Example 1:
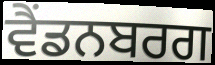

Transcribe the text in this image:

ਵੈਂਡਨਬਰਗ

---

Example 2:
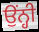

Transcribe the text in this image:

ਉਂਨ੍ਹੀ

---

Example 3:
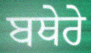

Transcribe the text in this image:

ਬਥੇਰੇ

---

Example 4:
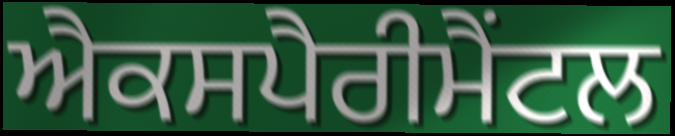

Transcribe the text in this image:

ਐਕਸਪੈਰੀਮੈਂਟਲ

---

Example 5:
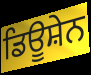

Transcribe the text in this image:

ਡਿਊਸ਼ੇਨ